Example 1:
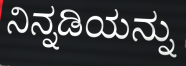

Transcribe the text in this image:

ನಿನ್ನಡಿಯನ್ನು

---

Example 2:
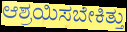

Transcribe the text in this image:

ಆಶ್ರಯಿಸಬೇಕಿತ್ತು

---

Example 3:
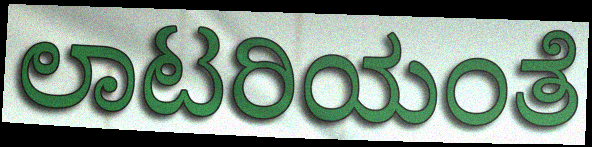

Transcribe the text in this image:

ಲಾಟರಿಯಂತೆ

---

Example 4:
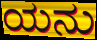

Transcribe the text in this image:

ಯನು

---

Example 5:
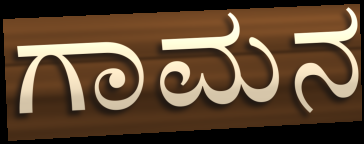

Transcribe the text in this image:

ಗಾಮನ